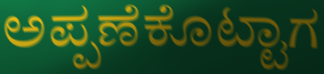
ಅಪ್ಪಣೆಕೊಟ್ಟಾಗ